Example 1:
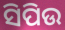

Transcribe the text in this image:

ସିପିଉ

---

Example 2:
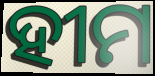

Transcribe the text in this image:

ହୀମ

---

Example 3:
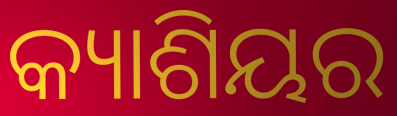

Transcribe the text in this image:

କ୍ୟାଶିୟର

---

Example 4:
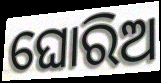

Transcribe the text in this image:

ଘୋରିଅ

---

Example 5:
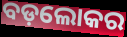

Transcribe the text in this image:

ବଡ଼ଲୋକର